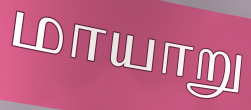
மாயாறு